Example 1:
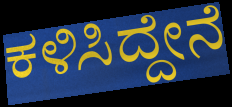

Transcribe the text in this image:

ಕಳಿಸಿದ್ದೇನೆ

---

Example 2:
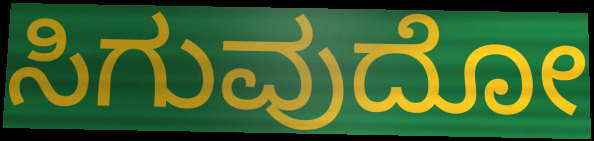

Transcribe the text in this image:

ಸಿಗುವುದೋ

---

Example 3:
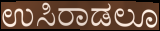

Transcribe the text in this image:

ಉಸಿರಾಡಲೂ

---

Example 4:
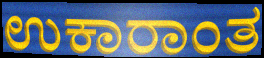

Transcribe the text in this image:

ಉಕಾರಾಂತ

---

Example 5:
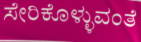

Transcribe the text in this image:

ಸೇರಿಕೊಳ್ಳುವಂತೆ